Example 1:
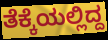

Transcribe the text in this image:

ತೆಕ್ಕೆಯಲ್ಲಿದ್ದ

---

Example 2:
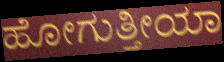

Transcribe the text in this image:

ಹೋಗುತ್ತೀಯಾ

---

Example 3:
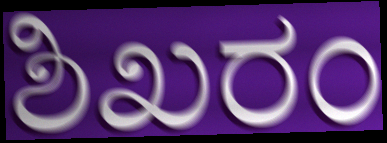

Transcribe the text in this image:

ಶಿಖರಂ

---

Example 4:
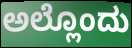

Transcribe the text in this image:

ಅಲ್ಲೊಂದು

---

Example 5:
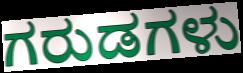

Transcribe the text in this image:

ಗರುಡಗಳು